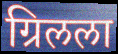
ग्रिलला